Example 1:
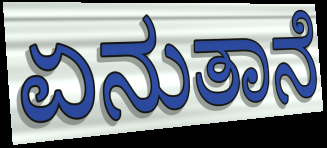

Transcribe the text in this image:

ಏನುತಾನೆ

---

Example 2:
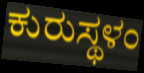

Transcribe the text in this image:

ಕುರುಸ್ಥಳಂ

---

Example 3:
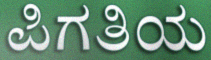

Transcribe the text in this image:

ಪಿಗತಿಯ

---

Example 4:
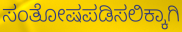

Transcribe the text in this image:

ಸಂತೋಷಪಡಿಸಲಿಕ್ಕಾಗಿ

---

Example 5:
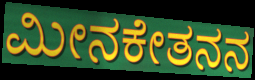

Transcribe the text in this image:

ಮೀನಕೇತನನ